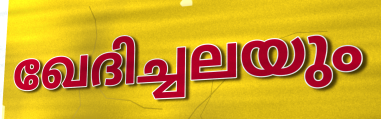
ഖേദിച്ചലയും